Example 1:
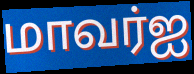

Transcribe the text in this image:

மாவர்ஐ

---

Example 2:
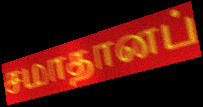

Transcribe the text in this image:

சமாதானப்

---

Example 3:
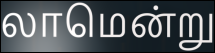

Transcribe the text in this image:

லாமென்று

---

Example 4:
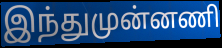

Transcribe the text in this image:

இந்துமுன்னணி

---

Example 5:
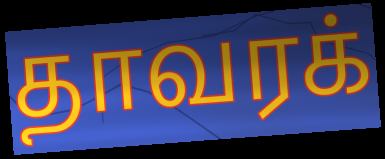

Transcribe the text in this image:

தாவரக்